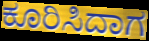
ಕೂರಿಸಿದಾಗ